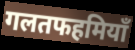
गलतफहमियाँ